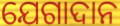
ଯେଗାଦାନ